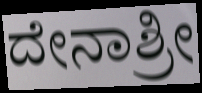
ದೇನಾಶ್ರೀ